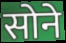
सोने